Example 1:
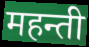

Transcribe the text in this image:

महन्ती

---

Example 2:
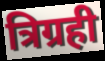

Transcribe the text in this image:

त्रिग्रही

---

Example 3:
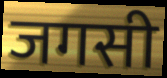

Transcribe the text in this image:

जगसी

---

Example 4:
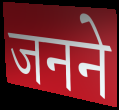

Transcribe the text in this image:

जनने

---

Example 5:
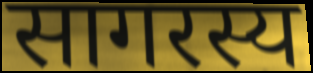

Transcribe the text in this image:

सागरस्य